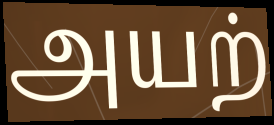
அயற்